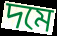
দমে